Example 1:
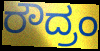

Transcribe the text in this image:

ರೌದ್ರಂ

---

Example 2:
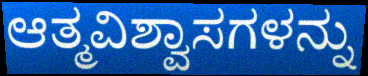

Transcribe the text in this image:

ಆತ್ಮವಿಶ್ವಾಸಗಳನ್ನು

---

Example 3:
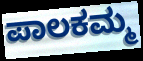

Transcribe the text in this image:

ಪಾಲಕಮ್ಮ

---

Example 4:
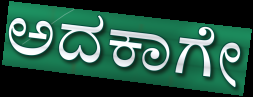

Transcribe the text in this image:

ಅದಕಾಗೇ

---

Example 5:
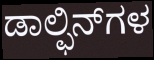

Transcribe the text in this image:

ಡಾಲ್ಫಿನ್‌ಗಳ